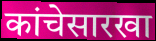
कांचेसारखा